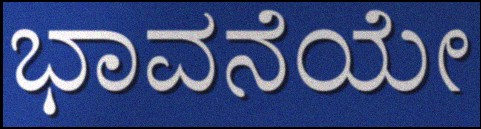
ಭಾವನೆಯೇ